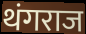
थंगराज